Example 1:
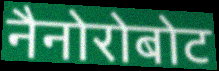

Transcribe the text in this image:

नैनोरोबोट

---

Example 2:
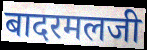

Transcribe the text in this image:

बादरमलजी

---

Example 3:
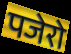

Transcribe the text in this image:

पजेरो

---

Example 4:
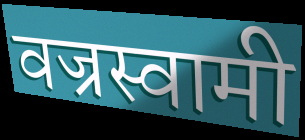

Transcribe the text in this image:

वज्रस्वामी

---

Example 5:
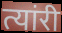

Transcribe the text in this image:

त्यांरी